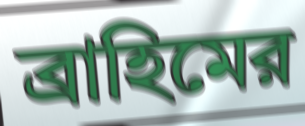
ব্রাহিমের